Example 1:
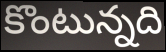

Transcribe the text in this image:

కొంటున్నది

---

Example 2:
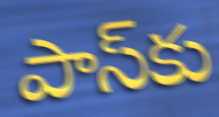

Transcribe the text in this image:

పాస్‌కు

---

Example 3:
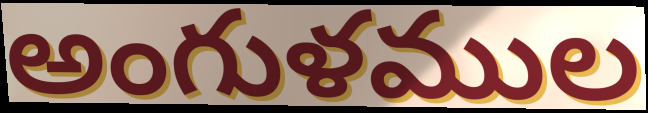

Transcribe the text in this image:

అంగుళముల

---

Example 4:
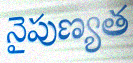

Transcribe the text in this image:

నైపుణ్యత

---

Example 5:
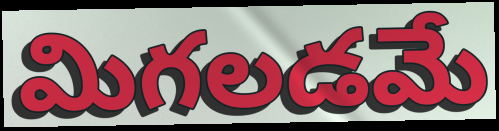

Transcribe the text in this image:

మిగలడమే